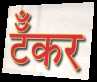
टॅँकर